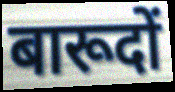
बारूदों